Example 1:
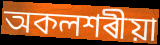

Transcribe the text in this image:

অকলশৰীয়া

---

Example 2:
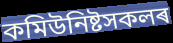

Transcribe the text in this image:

কমিউনিষ্টসকলৰ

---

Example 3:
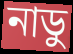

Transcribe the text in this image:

নাডু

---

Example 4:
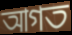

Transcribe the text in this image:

আগত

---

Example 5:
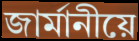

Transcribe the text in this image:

জাৰ্মানীয়ে